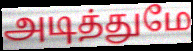
அடித்துமே